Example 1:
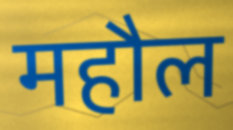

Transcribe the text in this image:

महौल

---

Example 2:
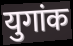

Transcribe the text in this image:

युगांक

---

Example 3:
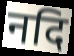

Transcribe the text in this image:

नदि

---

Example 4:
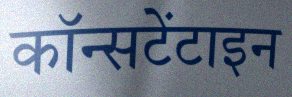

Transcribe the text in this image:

कॉन्सटेंटाइन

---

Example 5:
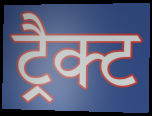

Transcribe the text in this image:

ट्रैक्ट